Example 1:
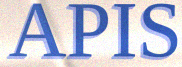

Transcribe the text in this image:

APIS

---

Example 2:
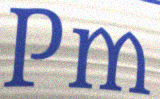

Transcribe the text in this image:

Pm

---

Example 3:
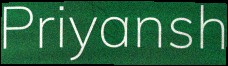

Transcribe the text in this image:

Priyansh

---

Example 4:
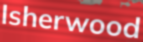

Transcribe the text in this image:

Isherwood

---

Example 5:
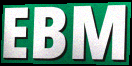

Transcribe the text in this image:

EBM